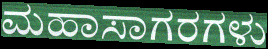
ಮಹಾಸಾಗರಗಳು